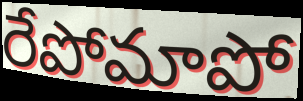
రేపోమాపో